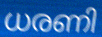
ധരണി